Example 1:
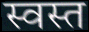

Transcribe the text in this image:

स्वस्त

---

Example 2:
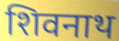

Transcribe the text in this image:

शिवनाथ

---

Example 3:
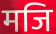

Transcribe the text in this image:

मजि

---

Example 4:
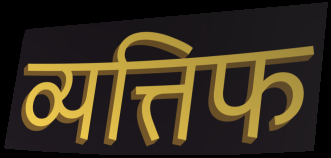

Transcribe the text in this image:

व्यत्तिफ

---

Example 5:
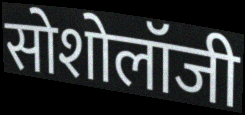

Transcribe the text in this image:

सोशोलॉजी